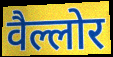
वैल्लोर